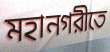
মহানগরীতে